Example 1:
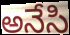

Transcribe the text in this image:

అనేసి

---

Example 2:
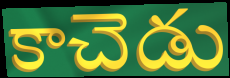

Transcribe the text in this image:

కాచెడు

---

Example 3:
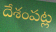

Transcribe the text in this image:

దేశంపట్ల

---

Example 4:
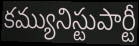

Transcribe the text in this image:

కమ్యునిస్టుపార్టీ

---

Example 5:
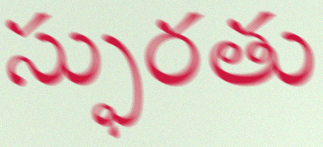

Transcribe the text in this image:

స్ఫురతు